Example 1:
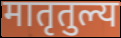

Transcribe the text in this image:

मातृतुल्य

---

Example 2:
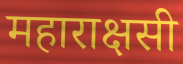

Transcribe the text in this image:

महाराक्षसी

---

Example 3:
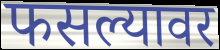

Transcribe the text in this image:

फसल्यावर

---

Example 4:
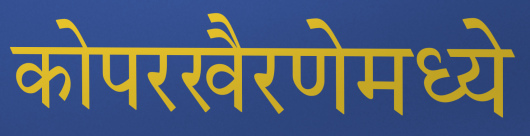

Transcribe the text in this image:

कोपरखैरणेमध्ये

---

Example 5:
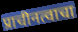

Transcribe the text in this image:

प्राचीनत्वाचा